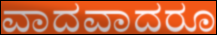
ವಾದವಾದರೂ